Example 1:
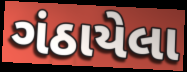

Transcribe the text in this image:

ગંઠાયેલા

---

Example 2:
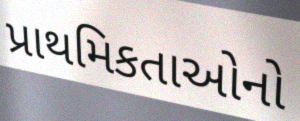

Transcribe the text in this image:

પ્રાથમિકતાઓનો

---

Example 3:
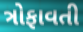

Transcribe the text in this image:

ત્રોફાવતી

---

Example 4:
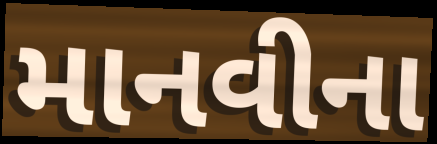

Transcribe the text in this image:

માનવીના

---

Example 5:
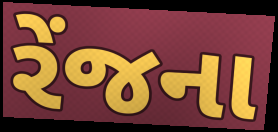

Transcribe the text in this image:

રેંજના